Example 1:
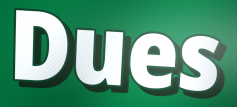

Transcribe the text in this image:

Dues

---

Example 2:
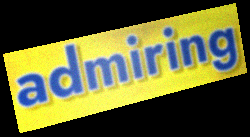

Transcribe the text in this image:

admiring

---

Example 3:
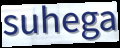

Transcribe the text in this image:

suhega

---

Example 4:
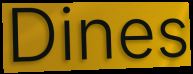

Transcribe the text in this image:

Dines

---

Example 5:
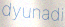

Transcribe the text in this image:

dyunadi